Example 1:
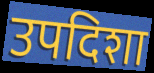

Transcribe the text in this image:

उपदिशा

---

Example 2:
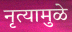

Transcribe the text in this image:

नृत्यामुळे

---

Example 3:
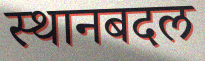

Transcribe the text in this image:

स्थानबदल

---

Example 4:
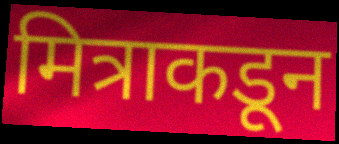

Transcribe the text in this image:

मित्राकडून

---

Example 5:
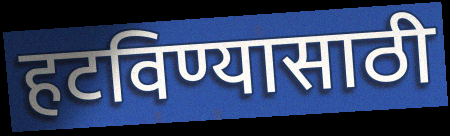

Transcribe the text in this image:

हटविण्यासाठी